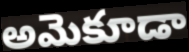
అమెకూడా